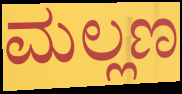
ಮಲ್ಲಣ